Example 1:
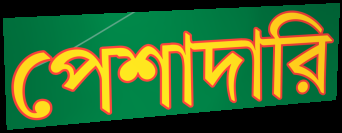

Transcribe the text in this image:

পেশাদারি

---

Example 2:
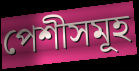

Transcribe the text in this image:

পেশীসমূহ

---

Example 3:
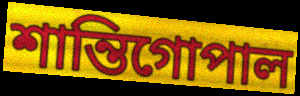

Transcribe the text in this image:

শান্তিগোপাল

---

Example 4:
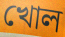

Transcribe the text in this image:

খোল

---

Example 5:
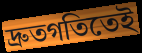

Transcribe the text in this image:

দ্রুতগতিতেই